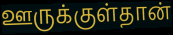
ஊருக்குள்தான்